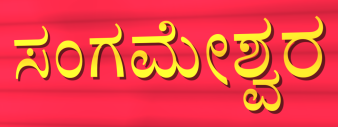
ಸಂಗಮೇಶ್ವರ